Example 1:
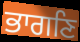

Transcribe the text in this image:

ਭਾਗਣਿ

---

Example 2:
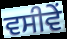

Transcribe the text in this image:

ਵਸੀਵੇਂ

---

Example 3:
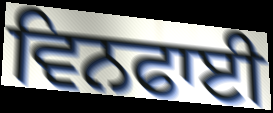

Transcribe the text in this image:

ਵਿਨਫਾਈ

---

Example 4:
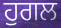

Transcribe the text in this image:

ਹੁਗਲ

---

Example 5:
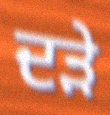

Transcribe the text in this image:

ਦੜੇ